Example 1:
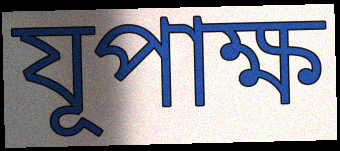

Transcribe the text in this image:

যূপাক্ষ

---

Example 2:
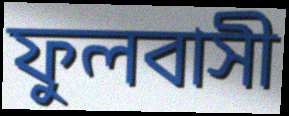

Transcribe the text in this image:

ফুলবাসী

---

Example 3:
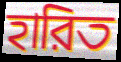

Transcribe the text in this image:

হারিত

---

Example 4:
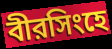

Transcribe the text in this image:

বীরসিংহে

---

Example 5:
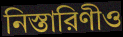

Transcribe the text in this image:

নিস্তারিণীও